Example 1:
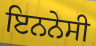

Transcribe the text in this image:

ਇਨਨੇਸੀ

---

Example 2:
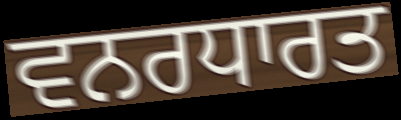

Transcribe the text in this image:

ਵਨਰਧਾਰਤ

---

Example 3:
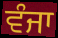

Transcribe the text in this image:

ਵੰਜਾ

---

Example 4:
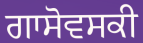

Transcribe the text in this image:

ਗਾਸੋਵਸਕੀ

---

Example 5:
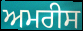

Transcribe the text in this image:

ਅਮਰੀਸ